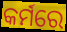
କର୍ମରେ